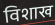
विशाख